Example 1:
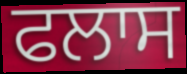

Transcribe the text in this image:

ਫਲਾਸ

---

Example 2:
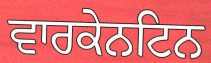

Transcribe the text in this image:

ਵਾਰਕੇਨਟਿਨ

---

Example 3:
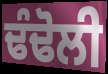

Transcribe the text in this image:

ਢੰਢੋਲੀ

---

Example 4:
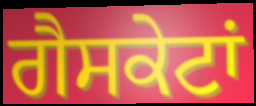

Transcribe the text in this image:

ਗੈਸਕੇਟਾਂ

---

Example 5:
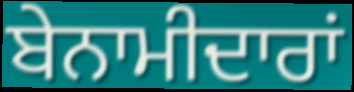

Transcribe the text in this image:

ਬੇਨਾਮੀਦਾਰਾਂ